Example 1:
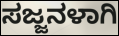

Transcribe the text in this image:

ಸಜ್ಜನಳಾಗಿ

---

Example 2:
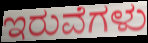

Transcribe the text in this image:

ಇರುವೆಗಳು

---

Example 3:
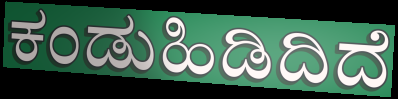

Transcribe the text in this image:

ಕಂಡುಹಿಡಿದಿದೆ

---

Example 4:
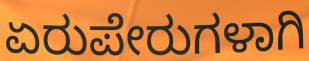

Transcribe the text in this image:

ಏರುಪೇರುಗಳಾಗಿ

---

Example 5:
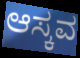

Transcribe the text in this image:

ಆಸ್ಕವ